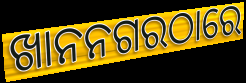
ଖାନନଗରଠାରେ